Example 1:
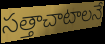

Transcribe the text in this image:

సత్తాచాటాలనే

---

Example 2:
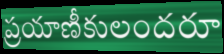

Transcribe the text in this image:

ప్రయాణీకులందరూ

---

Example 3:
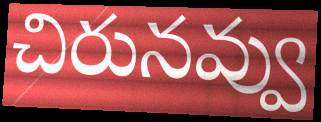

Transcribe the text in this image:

చిరునవ్వు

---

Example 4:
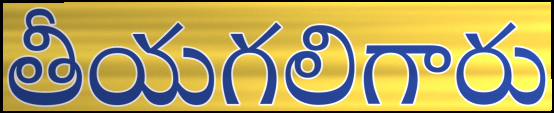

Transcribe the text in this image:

తీయగలిగారు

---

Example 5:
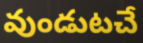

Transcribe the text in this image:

వుండుటచే